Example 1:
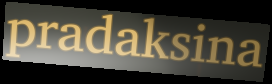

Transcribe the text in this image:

pradaksina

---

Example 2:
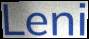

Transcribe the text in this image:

Leni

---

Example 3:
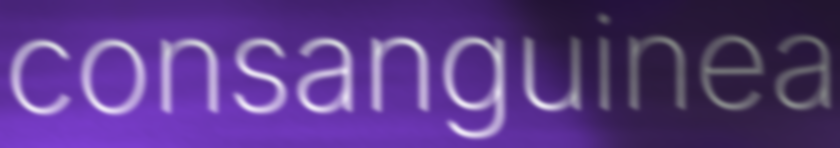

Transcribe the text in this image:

consanguinea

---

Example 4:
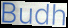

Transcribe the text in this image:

Budh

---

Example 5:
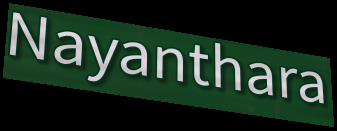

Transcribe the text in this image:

Nayanthara